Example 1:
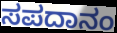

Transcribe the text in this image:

ಸಪದಾನಂ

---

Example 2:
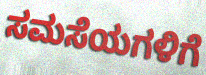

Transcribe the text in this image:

ಸಮಸೆಯಗಳಿಗೆ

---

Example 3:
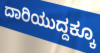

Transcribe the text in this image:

ದಾರಿಯುದ್ದಕ್ಕೂ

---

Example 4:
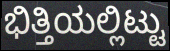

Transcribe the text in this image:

ಭಿತ್ತಿಯಲ್ಲಿಟ್ಟು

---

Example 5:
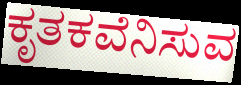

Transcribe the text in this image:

ಕೃತಕವೆನಿಸುವ